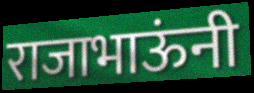
राजाभाऊंनी